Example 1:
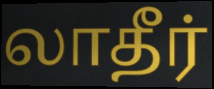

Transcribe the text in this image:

லாதீர்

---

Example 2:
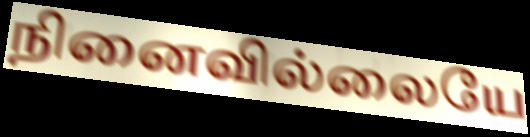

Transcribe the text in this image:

நினைவில்லையே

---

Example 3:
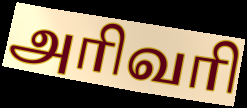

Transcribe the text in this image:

அரிவரி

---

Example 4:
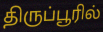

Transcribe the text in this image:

திருப்பூரில்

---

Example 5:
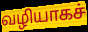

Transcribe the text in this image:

வழியாகச்